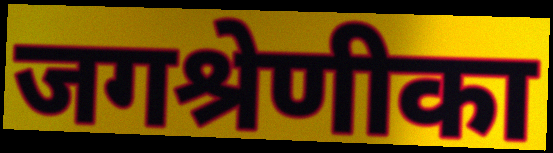
जगश्रेणीका